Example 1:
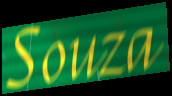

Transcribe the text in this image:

Souza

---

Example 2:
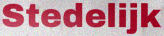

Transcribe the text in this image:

Stedelijk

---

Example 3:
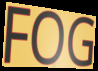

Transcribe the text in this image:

FOG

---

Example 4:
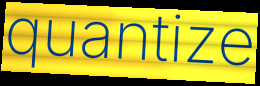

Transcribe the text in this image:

quantize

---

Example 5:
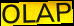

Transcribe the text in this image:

OLAP